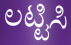
ಲಟ್ಟಿಸಿ